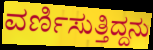
ವರ್ಣಿಸುತ್ತಿದ್ದನು